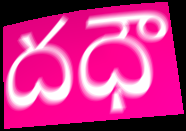
దధౌ